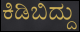
ಕಿಡಿಬಿದ್ದು